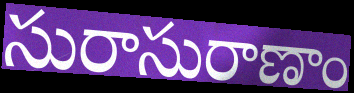
సురాసురాణాం